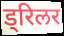
ड्रिलर